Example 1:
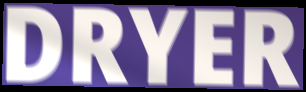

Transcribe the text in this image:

DRYER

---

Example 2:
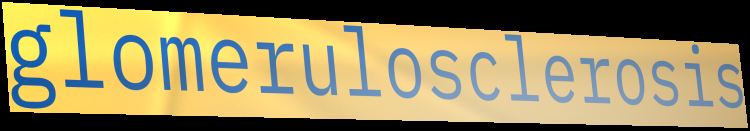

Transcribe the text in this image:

glomerulosclerosis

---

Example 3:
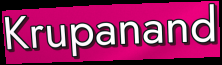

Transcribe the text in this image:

Krupanand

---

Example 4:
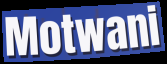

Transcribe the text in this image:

Motwani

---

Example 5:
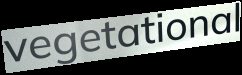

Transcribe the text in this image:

vegetational